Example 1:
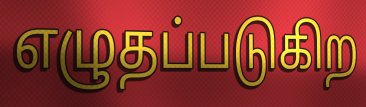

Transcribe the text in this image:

எழுதப்படுகிற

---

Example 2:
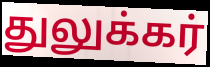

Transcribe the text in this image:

துலுக்கர்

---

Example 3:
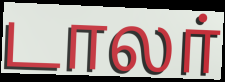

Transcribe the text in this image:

டாலர்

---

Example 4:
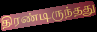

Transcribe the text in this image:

திரண்டிருந்தது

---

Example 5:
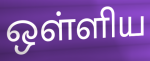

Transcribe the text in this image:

ஒள்ளிய